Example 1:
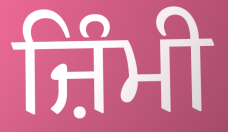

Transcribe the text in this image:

ਜ਼ਿੰਮੀ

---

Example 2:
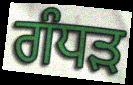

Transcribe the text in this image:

ਗੰਧੜ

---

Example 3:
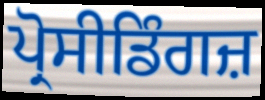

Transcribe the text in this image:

ਪ੍ਰੋਸੀਡਿੰਗਜ਼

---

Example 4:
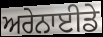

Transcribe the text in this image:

ਅਰੇਨਾਈਡੇ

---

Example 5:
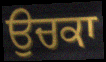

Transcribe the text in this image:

ਉਚਕਾ